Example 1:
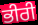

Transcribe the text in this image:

ਭੀਰੀ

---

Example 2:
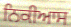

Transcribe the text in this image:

ਨਿਕੀਆਸ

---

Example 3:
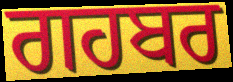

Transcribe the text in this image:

ਗਹਬਰ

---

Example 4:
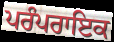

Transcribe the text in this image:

ਪਰੰਪਰਾਇਕ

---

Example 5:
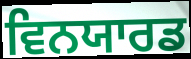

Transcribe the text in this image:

ਵਿਨਯਾਰਡ